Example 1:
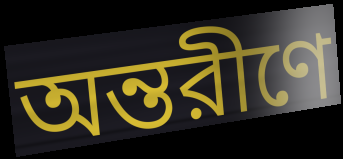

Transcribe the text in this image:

অন্তরীণে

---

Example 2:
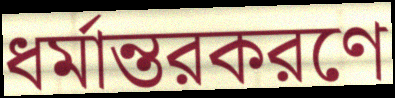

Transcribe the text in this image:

ধর্মান্তরকরণে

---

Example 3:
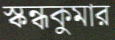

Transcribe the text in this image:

স্কন্ধকুমার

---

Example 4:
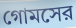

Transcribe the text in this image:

গোমসের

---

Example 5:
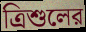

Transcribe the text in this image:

ত্রিশুলের